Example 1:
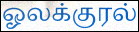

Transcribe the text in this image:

ஓலக்குரல்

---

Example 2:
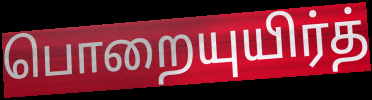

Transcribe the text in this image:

பொறையுயிர்த்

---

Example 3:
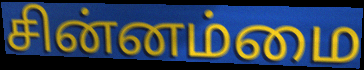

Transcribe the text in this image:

சின்னம்மை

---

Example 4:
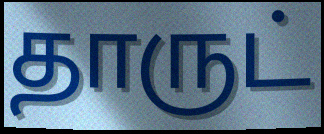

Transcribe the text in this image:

தாருட்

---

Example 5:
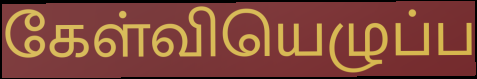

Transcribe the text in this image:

கேள்வியெழுப்ப